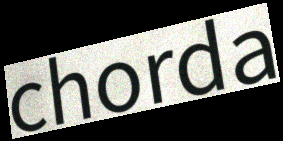
chorda